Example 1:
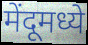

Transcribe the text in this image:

मेंदूमध्ये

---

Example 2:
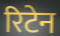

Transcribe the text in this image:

रिटेन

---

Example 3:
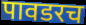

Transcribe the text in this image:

पावडरच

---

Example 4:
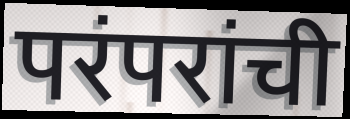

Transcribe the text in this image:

परंपरांची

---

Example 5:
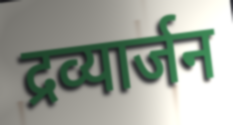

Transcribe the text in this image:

द्रव्यार्जन